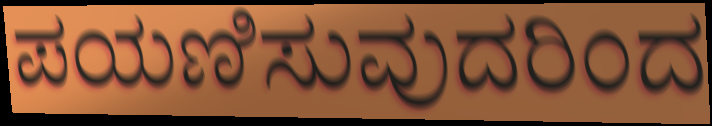
ಪಯಣಿಸುವುದರಿಂದ